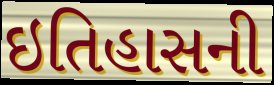
ઇતિહાસની